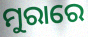
ମୁରାରେ